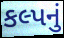
કલ્પનું